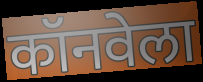
कॉनवेला